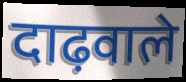
दाढ़वाले